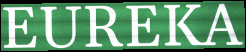
EUREKA